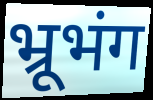
भ्रूभंग